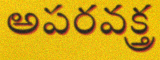
అపరవక్త్ర